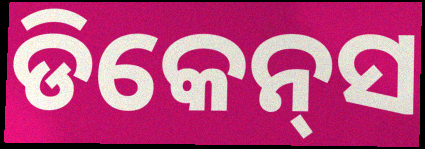
ଡିକେନ୍‌ସ